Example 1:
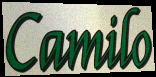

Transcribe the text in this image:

Camilo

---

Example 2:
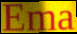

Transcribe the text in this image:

Ema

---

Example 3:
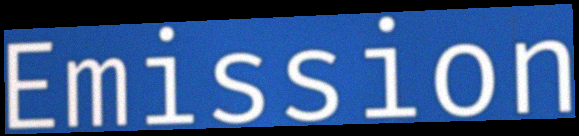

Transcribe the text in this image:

Emission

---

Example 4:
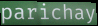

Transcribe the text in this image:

parichay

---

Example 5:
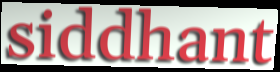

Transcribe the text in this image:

siddhant